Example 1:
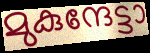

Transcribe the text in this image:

മുകുന്ദേട്ടാ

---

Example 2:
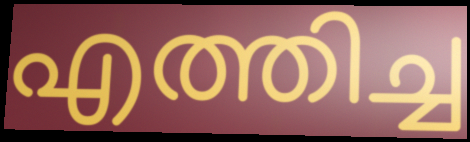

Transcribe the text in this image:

എത്തിച്ച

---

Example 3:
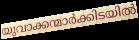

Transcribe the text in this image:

യുവാക്കന്മാർക്കിടയിൽ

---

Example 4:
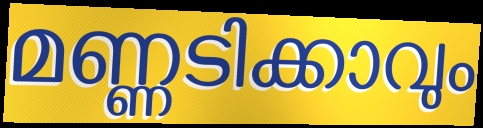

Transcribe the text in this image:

മണ്ണടിക്കാവും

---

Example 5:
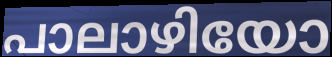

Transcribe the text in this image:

പാലാഴിയോ